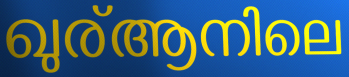
ഖുര്ആനിലെ